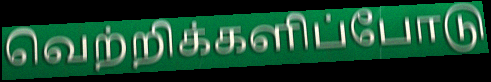
வெற்றிக்களிப்போடு